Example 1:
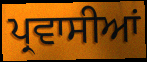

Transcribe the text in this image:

ਪ੍ਰਵਾਸੀਆਂ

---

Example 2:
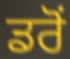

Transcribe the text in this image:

ਡਰੋਂ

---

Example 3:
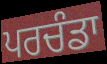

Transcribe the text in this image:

ਪਰਚੰਡਾ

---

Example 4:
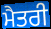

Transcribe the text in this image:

ਮੈਤਰੀ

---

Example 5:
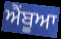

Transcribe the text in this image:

ਐਂਬੂਆ